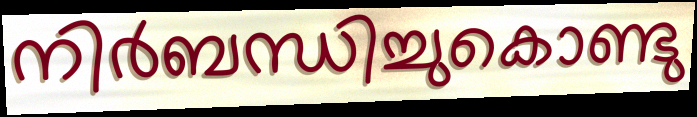
നിർബന്ധിച്ചുകൊണ്ടു